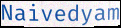
Naivedyam